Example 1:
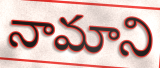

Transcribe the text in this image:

నామాని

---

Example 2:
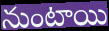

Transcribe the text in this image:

నుంటాయి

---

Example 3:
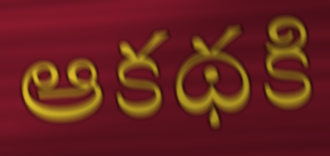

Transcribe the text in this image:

ఆకథకి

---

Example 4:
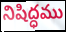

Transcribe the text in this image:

నిషిద్ధము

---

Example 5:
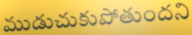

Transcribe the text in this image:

ముడుచుకుపోతుందని